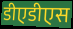
डीएडीएस